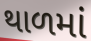
થાળમાં